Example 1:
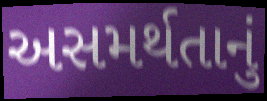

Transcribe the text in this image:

અસમર્થતાનું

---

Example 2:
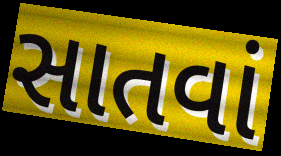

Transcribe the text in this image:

સાતવાં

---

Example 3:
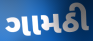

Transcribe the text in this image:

ગામઠી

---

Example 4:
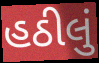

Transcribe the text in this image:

હઠીલું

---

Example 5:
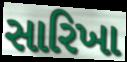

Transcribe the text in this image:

સારિખા